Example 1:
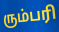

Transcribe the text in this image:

ரும்பரி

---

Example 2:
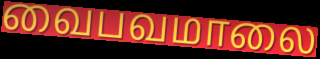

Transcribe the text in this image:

வைபவமாலை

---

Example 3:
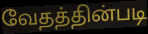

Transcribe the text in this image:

வேதத்தின்படி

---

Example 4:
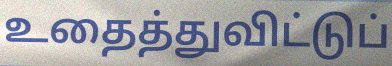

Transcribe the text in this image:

உதைத்துவிட்டுப்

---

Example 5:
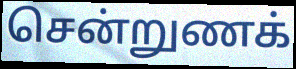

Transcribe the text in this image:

சென்றுணக்